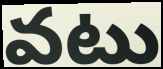
వటు